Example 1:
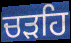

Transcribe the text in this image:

ਚੜਹਿ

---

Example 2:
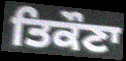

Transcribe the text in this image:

ਤਿਕੌਣਾ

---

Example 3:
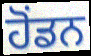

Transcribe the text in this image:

ਹੋਂਡਨ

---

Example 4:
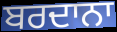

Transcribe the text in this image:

ਬਰਦਾਨਾ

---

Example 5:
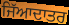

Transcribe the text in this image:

ਜਿੱਆਦਾਤਰ